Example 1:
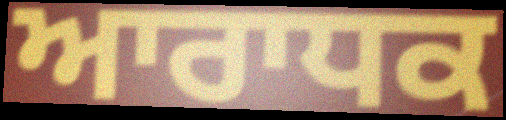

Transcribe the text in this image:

ਆਰਾਧਕ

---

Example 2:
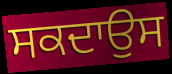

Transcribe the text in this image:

ਸਕਦਾਉਸ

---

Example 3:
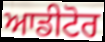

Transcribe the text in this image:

ਆਡੀਟੋਰ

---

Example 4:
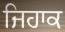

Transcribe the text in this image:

ਜਿਹਾਕ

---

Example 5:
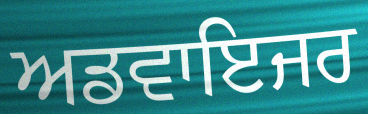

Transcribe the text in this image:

ਅਡਵਾਇਜਰ